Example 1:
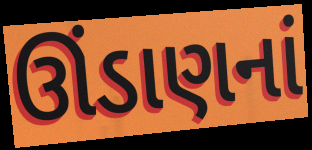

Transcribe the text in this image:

ઊંડાણનાં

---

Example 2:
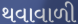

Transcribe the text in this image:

થવાવાળી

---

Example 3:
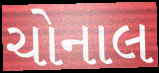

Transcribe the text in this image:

ચોનાલ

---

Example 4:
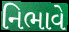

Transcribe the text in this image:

નિભાવે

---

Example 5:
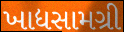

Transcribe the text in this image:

ખાદ્યસામગ્રી